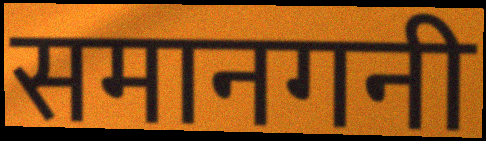
समानगनी